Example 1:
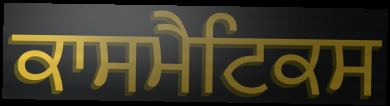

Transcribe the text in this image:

ਕਾਸਮੈਟਿਕਸ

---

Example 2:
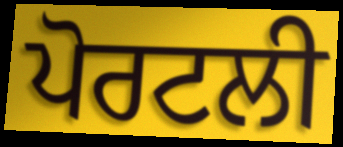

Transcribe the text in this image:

ਪੋਰਟਲੀ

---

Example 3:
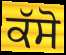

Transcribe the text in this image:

ਕੱਸੋ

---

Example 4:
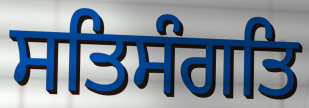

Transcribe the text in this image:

ਸਤਿਸੰਗਤਿ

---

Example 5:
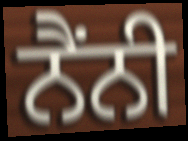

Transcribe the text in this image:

ਨੈਂਨੀ